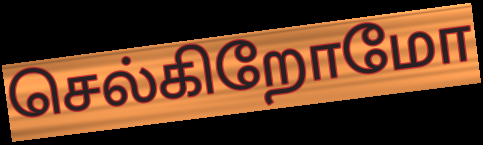
செல்கிறோமோ